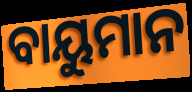
ବାୟୁମାନ